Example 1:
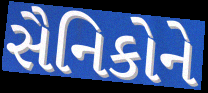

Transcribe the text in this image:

સૈનિકોને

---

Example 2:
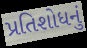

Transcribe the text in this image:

પ્રતિશોધનું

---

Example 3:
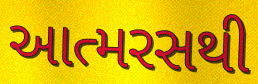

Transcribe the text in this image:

આત્મરસથી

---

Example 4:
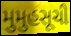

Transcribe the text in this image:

મુમુહસૂચી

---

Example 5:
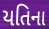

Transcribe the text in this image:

યતિના